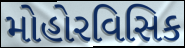
મોહોરવિસિક